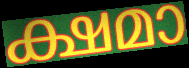
ക്ഷമാ